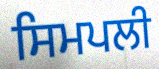
ਸਿਮਪਲੀ